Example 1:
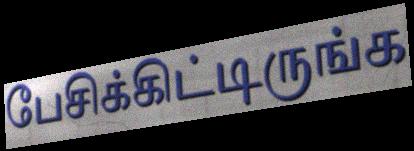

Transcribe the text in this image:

பேசிக்கிட்டிருங்க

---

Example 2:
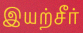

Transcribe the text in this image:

இயற்சீர்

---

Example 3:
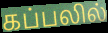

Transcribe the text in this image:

கப்பலில்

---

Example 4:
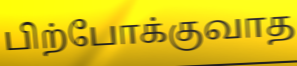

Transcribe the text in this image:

பிற்போக்குவாத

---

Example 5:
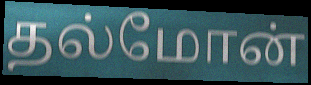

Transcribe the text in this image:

தல்மோன்